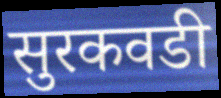
सुरकवडी